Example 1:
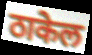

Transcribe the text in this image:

ठाकेल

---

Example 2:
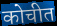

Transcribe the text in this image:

कोचीत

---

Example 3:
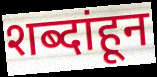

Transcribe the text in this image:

शब्दांहून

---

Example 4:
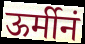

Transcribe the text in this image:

ऊर्मीनं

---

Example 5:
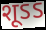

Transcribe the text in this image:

शूऽऽ